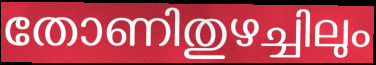
തോണിതുഴച്ചിലും